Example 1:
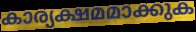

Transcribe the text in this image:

കാര്യക്ഷമമാക്കുക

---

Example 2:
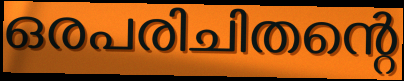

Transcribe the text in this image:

ഒരപരിചിതന്റെ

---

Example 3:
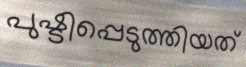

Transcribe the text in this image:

പുഷ്ടിപ്പെടുത്തിയത്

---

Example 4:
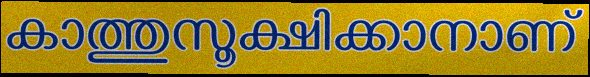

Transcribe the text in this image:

കാത്തുസൂക്ഷിക്കാനാണ്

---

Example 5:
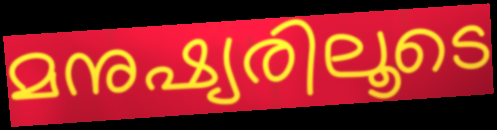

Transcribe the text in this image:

മനുഷ്യരിലൂടെ